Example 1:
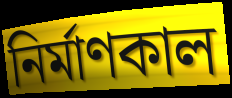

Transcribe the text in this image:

নির্মাণকাল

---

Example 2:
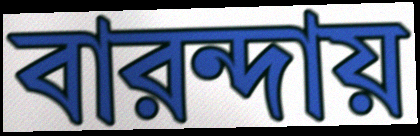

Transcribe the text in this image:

বারন্দায়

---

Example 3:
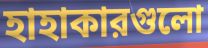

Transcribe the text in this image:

হাহাকারগুলো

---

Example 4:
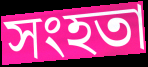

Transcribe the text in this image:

সংহতা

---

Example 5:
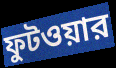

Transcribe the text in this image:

ফুটওয়ার